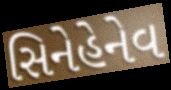
સિનેહેનેવ